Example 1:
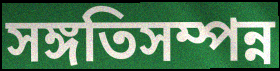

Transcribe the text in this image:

সঙ্গতিসম্পন্ন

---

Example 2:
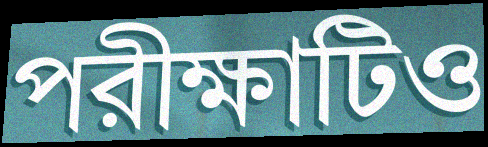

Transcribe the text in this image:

পরীক্ষাটিও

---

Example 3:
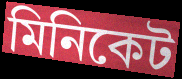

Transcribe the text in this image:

মিনিকেট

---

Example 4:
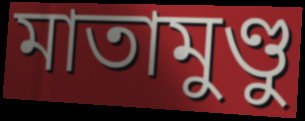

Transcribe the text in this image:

মাতামুণ্ডু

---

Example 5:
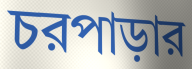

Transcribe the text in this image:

চরপাড়ার